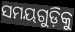
ସମୟଗୁଡ଼ିକୁ